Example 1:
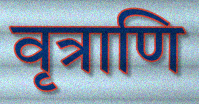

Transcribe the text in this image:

वृत्राणि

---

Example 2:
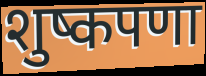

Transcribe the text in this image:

शुष्कपणा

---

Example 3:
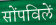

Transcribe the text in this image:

सोंपविलें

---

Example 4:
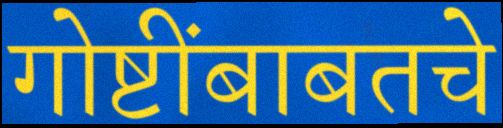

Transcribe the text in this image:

गोष्टींबाबतचे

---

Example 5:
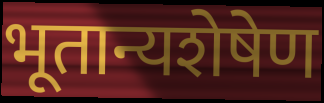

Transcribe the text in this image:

भूतान्यशेषेण